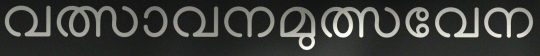
വത്സാവനമുത്സവേന